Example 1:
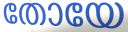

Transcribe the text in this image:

തോയേ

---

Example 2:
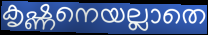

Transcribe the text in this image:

കൃഷ്ണനെയല്ലാതെ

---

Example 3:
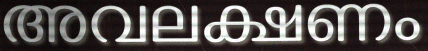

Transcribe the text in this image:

അവലക്ഷണം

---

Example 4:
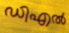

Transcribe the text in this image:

ഡിഎൽ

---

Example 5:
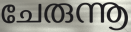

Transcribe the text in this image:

ചേരുന്നൂ